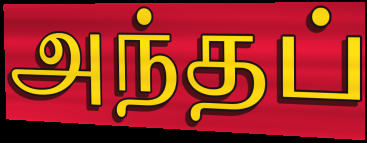
அந்தப்